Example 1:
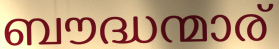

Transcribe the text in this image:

ബൗദ്ധന്മാര്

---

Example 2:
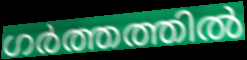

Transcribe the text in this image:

ഗർത്തത്തിൽ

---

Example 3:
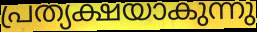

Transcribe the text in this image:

പ്രത്യക്ഷയാകുന്നു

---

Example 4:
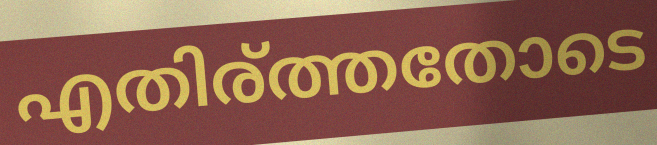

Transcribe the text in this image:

എതിര്ത്തതോടെ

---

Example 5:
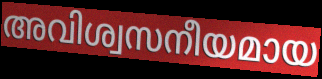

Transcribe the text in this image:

അവിശ്വസനീയമായ